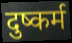
दुष्कर्म